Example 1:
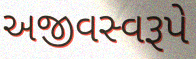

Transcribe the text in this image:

અજીવસ્વરૂપે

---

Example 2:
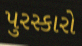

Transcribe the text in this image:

પુરસ્કારો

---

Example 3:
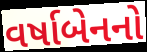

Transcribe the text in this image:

વર્ષાબેનનો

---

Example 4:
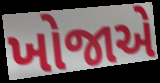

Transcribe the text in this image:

ખોજાએ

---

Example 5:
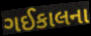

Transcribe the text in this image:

ગઈકાલના